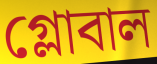
গ্লোবাল